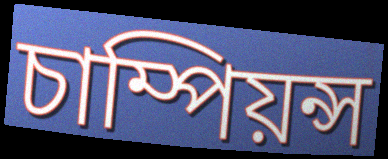
চাম্পিয়ন্স